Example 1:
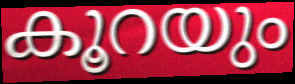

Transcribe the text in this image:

കൂറയും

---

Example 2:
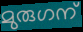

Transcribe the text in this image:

മുരുഗന്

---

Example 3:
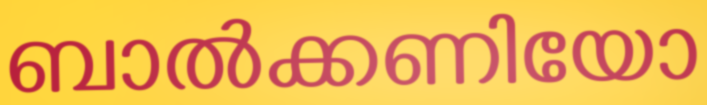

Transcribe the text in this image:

ബാൽക്കണിയോ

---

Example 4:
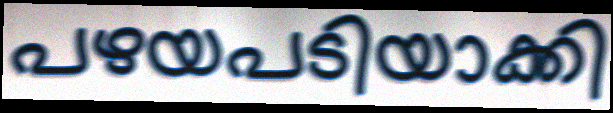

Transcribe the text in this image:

പഴയപടിയാക്കി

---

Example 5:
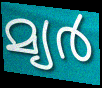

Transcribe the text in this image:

മ്യർ